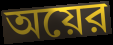
অয়ের